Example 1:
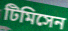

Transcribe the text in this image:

টিমিসেন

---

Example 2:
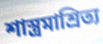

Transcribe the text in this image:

শাস্ত্রমাশ্রিত্য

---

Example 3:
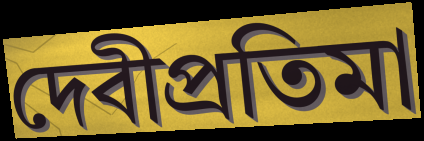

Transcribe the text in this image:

দেবীপ্রতিমা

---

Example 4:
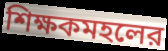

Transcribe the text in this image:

শিক্ষকমহলের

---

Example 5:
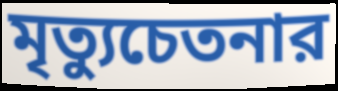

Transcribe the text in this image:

মৃত্যুচেতনার